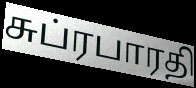
சுப்ரபாரதி